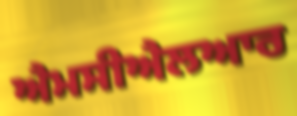
ਐਮਸੀਐਲਆਰ